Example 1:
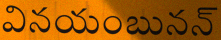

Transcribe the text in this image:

వినయంబునన్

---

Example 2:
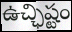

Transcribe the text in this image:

ఉచ్ఛిష్టం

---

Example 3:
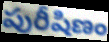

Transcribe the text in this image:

పురీషిణం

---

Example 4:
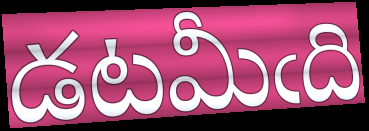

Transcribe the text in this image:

డటమీఁది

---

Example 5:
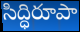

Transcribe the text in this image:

సిద్ధిరూపా